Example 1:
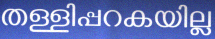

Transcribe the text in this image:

തള്ളിപ്പറകയില്ല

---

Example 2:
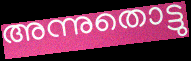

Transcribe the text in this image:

അന്നുതൊട്ടു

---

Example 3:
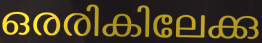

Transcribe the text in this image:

ഒരരികിലേക്കു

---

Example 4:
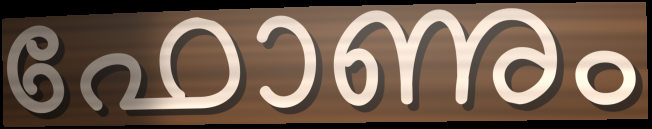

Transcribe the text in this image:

ഫോണും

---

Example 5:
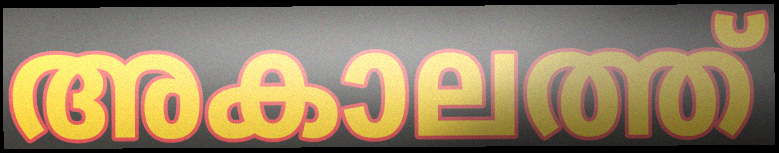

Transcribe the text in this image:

അകാലത്ത്